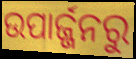
ଉପାର୍ଜ୍ଜନରୁ